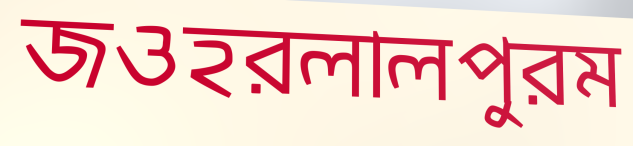
জওহরলালপুরম